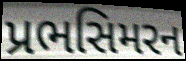
પ્રભસિમરન